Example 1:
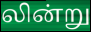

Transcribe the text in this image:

லின்று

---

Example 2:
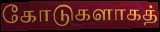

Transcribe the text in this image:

கோடுகளாகத்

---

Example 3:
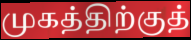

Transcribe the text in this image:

முகத்திற்குத்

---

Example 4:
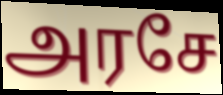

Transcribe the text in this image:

அரசே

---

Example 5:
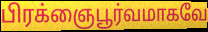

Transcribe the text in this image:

பிரக்ஞைபூர்வமாகவே